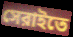
সেরাইতে